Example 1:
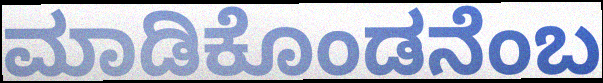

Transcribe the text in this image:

ಮಾಡಿಕೊಂಡನೆಂಬ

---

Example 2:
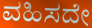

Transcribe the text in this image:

ವಹಿಸದೇ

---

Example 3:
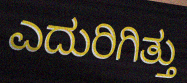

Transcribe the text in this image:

ಎದುರಿಗಿತ್ತು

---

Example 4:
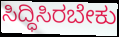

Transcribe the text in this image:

ಸಿದ್ಧಿಸಿರಬೇಕು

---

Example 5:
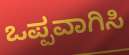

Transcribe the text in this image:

ಒಪ್ಪವಾಗಿಸಿ